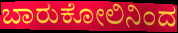
ಬಾರುಕೋಲಿನಿಂದ